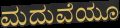
ಮದುವೆಯೂ